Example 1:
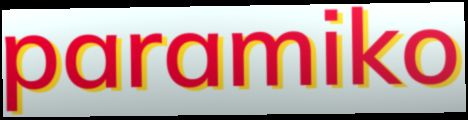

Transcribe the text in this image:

paramiko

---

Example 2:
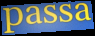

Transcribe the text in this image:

passa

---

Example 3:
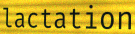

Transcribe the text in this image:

lactation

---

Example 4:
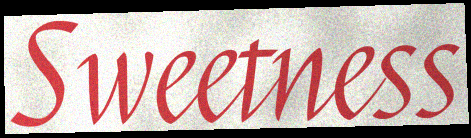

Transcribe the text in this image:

Sweetness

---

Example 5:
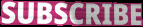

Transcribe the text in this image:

SUBSCRIBE